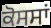
ਕੋਸਸਾਂ